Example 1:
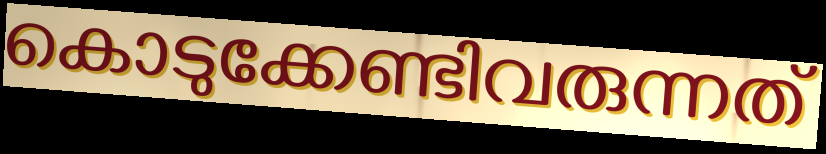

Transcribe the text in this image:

കൊടുക്കേണ്ടിവരുന്നത്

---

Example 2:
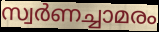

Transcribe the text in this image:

സ്വർണച്ചാമരം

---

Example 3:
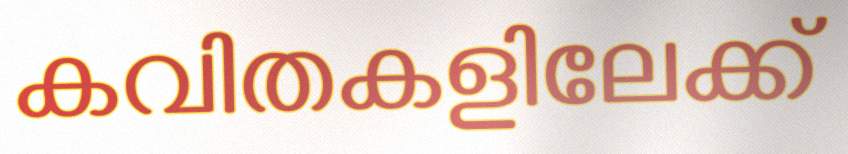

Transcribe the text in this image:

കവിതകളിലേക്ക്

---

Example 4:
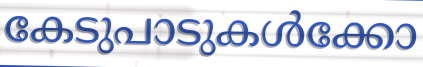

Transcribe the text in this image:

കേടുപാടുകൾക്കോ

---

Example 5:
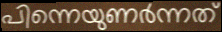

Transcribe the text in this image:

പിന്നെയുണർന്നത്